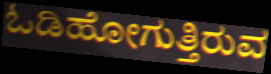
ಓಡಿಹೋಗುತ್ತಿರುವ